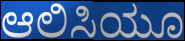
ಆಲಿಸಿಯೂ